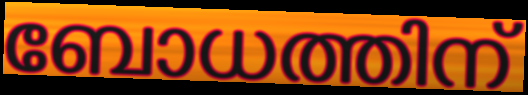
ബോധത്തിന്